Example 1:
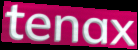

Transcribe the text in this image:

tenax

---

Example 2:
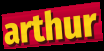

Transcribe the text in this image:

arthur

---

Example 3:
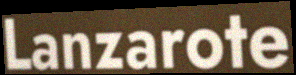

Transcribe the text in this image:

Lanzarote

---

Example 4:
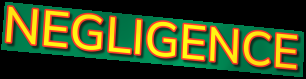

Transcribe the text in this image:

NEGLIGENCE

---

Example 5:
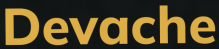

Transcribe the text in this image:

Devache